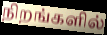
நிறங்களில்